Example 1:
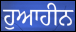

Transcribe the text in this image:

ਹੁਆਹੀਨ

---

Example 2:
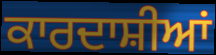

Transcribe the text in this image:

ਕਾਰਦਾਸ਼ੀਆਂ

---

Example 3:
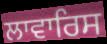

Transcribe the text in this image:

ਲਾਵਾਰਿਸ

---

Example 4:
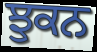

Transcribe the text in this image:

ਝੁਕਨ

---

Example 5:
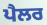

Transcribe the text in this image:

ਪੈਲਰ